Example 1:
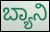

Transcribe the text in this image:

ಬ್ಯಾನಿ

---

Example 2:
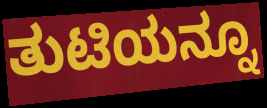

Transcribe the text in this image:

ತುಟಿಯನ್ನೂ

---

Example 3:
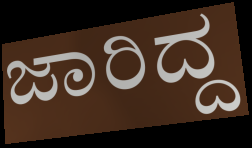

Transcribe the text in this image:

ಜಾರಿದ್ದ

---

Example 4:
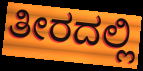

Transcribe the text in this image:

ತೀರದಲ್ಲಿ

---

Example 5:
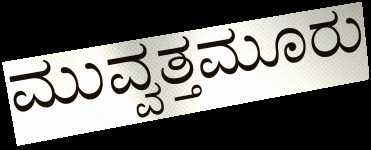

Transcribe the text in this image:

ಮುವ್ವತ್ತಮೂರು